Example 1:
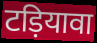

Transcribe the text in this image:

टड़ियावा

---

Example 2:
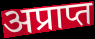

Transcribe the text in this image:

अप्राप्त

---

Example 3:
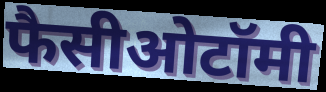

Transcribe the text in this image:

फैसीओटॉमी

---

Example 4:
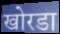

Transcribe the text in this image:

खोरडा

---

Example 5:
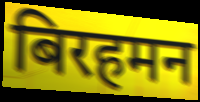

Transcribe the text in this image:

बिरहमन